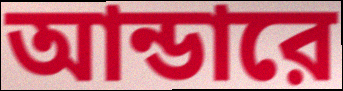
আন্ডারে